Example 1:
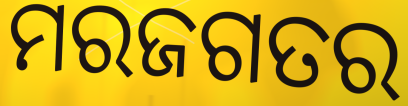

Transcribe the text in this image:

ମରଜଗତର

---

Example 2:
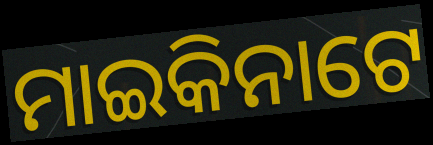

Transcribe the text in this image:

ମାଇକିନାଟେ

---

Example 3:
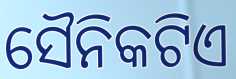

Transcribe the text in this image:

ସୈନିକଟିଏ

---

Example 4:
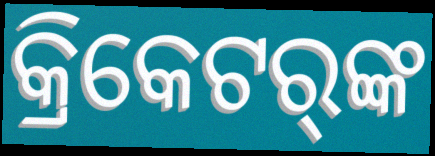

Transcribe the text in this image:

କ୍ରିକେଟର୍‌ଙ୍କ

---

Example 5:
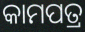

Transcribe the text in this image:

କାମପତ୍ର